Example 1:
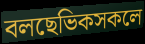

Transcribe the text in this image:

বলছেভিকসকলে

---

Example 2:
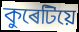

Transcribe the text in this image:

কুৰেটিয়ে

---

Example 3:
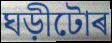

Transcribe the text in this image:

ঘড়ীটোৰ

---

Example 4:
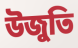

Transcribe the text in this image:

উজুতি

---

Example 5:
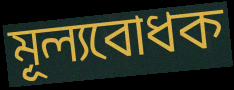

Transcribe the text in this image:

মূল্যবোধক